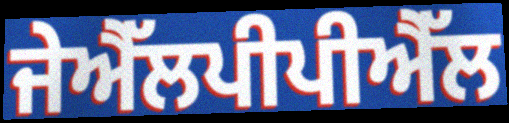
ਜੇਐੱਲਪੀਪੀਐੱਲ